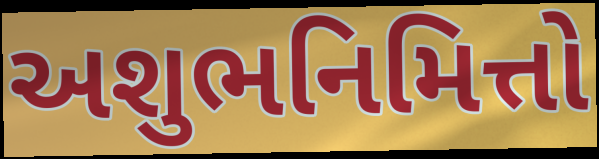
અશુભનિમિત્તો